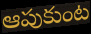
ఆపుకుంట